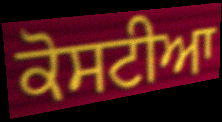
ਕੋਸਟੀਆ